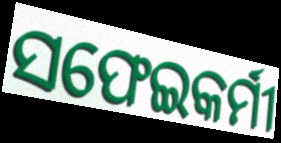
ସଫେଇକର୍ମୀ